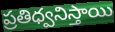
ప్రతిధ్వనిస్తాయి